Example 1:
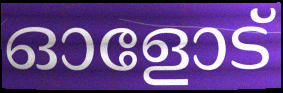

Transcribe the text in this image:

ഓളോട്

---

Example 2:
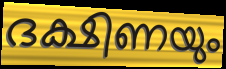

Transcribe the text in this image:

ദക്ഷിണയും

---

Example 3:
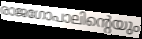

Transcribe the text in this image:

രാജഗോപാലിന്റെയും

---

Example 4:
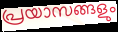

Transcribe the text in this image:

പ്രയാസങ്ങളും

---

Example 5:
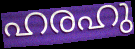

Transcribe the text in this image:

ഹരഹു